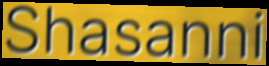
Shasanni